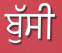
ਬੁੱਸੀ